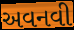
અવનવી